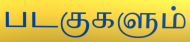
படகுகளும்